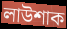
লাউশাক